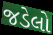
જડેલો